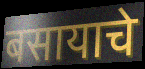
बसायाचे